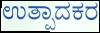
ಉತ್ಪಾದಕರ